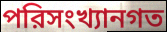
পরিসংখ্যানগত